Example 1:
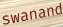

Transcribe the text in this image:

swanand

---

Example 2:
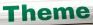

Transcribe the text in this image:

Theme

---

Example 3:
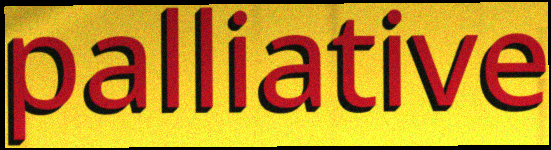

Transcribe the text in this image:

palliative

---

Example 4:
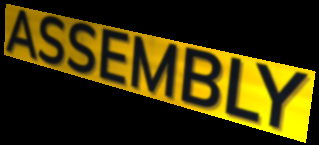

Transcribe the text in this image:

ASSEMBLY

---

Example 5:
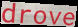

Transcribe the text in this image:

drove